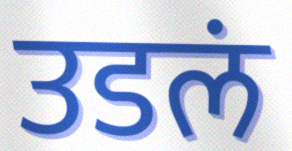
उडलं